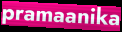
pramaanika